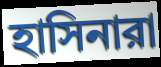
হাসিনারা